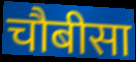
चौबीसा